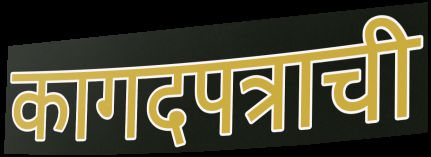
कागदपत्राची